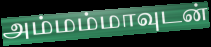
அம்மம்மாவுடன்